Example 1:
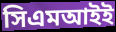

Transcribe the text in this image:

সিএমআইই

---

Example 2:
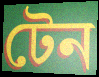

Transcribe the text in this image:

টেন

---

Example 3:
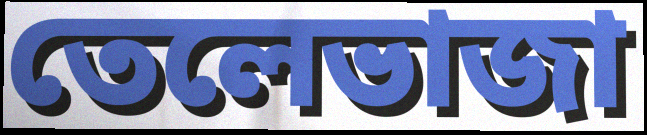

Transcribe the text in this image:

তেলেভাজা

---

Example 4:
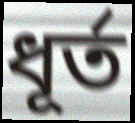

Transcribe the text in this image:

ধূর্ত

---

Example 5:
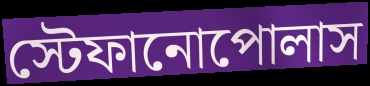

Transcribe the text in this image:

স্টেফানোপোলাস